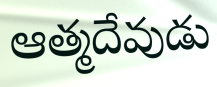
ఆత్మదేవుడు